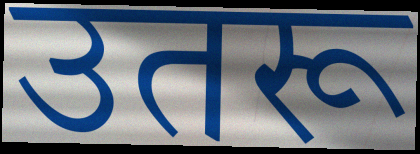
उतरू